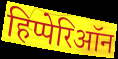
हिप्पेरिऑन